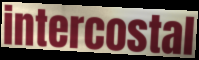
intercostal